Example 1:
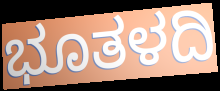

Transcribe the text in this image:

ಭೂತಳದಿ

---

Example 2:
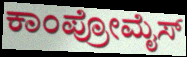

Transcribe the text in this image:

ಕಾಂಪ್ರೋಮೈಸ್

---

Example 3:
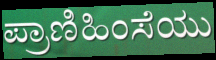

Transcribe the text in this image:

ಪ್ರಾಣಿಹಿಂಸೆಯು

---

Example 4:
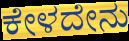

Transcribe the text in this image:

ಕೇಳದೇನು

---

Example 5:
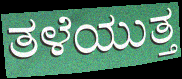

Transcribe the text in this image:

ತಳೆಯುತ್ತ